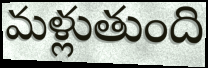
మళ్లుతుంది